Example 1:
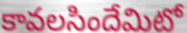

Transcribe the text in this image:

కావలసిందేమిటో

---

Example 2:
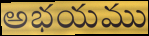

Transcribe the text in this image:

అభయము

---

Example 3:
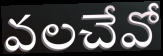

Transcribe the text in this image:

వలచేవో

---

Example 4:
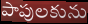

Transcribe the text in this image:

పాపులకును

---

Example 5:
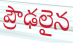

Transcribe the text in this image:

ప్రౌఢలైన